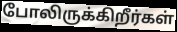
போலிருக்கிறீர்கள்